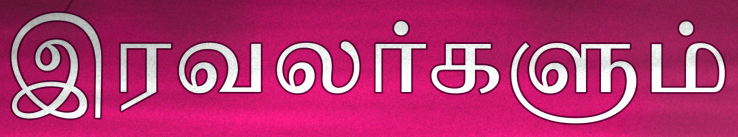
இரவலர்களும்